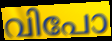
വിപോ